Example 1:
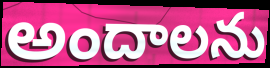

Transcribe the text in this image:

అందాలను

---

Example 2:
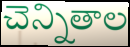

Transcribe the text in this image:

చెన్నితాల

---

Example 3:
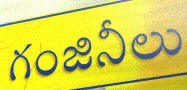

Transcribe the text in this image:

గంజినీలు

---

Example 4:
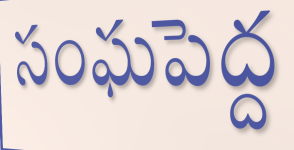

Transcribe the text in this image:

సంఘపెద్ద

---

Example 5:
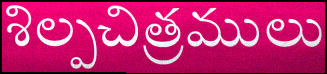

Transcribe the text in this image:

శిల్పచిత్రములు